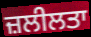
ਜ਼ਲੀਲਤਾ